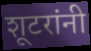
शूटरांनी